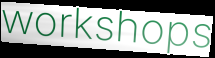
workshops